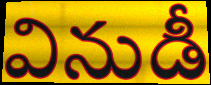
వినుడీ